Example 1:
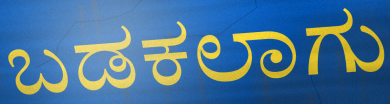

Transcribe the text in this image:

ಬಡಕಲಾಗು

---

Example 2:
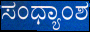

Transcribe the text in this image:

ಸಂಧ್ಯಾಂಶ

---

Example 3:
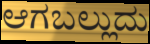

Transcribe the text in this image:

ಆಗಬಲ್ಲುದು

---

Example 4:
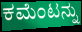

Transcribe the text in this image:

ಕಮೆಂಟನ್ನು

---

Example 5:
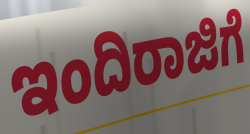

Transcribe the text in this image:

ಇಂದಿರಾಜಿಗೆ